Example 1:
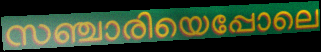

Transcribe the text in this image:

സഞ്ചാരിയെപ്പോലെ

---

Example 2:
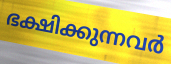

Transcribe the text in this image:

ഭക്ഷിക്കുന്നവർ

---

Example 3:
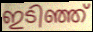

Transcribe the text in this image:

ഇടിഞ്ഞ്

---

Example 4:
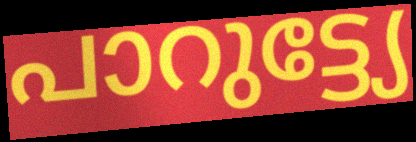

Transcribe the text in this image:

പാറുട്ട്യേ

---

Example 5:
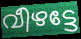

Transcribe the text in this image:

വീഴട്ടേ